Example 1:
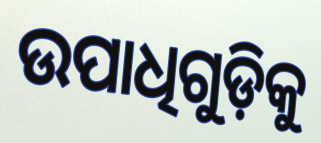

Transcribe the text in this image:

ଉପାଧିଗୁଡ଼ିକୁ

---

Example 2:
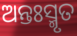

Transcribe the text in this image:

ଅନ୍ତଃସ୍ମୃତ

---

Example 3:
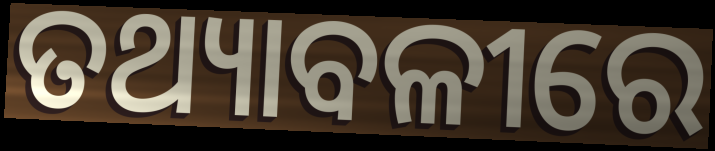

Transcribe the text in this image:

ତଥ୍ୟାବଳୀରେ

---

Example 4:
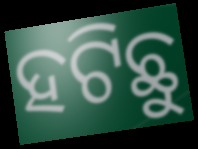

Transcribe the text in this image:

ହଟିଛୁ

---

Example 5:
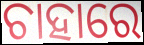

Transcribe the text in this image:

ଚାହାରେ